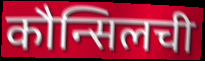
कौन्सिलची